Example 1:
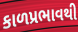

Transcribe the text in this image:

કાળપ્રભાવથી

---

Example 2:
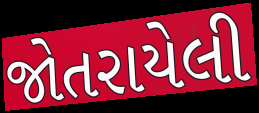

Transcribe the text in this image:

જોતરાયેલી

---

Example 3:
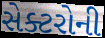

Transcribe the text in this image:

સેક્ટરોની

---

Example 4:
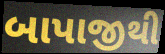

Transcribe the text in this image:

બાપાજીથી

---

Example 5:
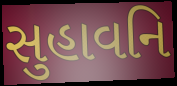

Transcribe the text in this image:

સુહાવનિ